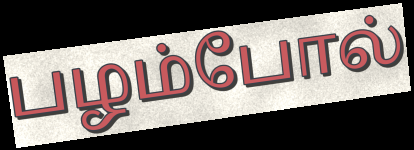
பழம்போல்